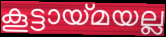
കൂട്ടായ്മയല്ല